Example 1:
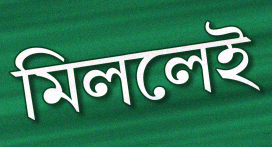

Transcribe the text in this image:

মিললেই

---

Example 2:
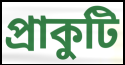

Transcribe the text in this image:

প্রাকুটি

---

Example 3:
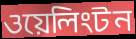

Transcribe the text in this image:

ওয়েলিংটন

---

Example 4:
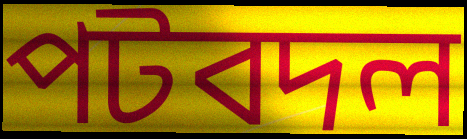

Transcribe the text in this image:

পটবদল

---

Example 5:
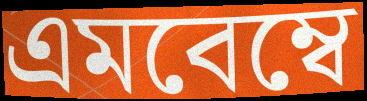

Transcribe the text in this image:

এমবেম্বে